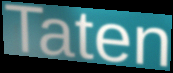
Taten